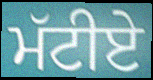
ਮੱਟੀਏ